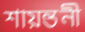
শায়ন্তনী